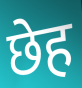
छेह